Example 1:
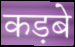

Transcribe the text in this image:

कड़बे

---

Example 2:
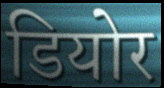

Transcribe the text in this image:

डियोर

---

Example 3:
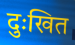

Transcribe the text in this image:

दुःखित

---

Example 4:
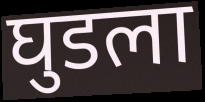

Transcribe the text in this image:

घुडला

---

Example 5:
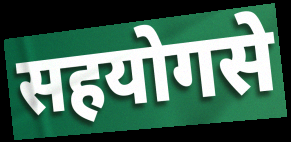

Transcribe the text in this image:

सहयोगसे